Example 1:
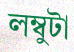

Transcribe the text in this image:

লম্বুটা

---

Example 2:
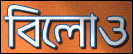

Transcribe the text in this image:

বিলোও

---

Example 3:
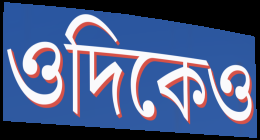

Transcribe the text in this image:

ওদিকেও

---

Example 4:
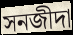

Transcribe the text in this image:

সনজীদা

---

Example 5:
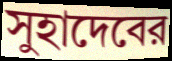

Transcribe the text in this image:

সুহাদেবের